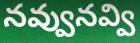
నవ్వునవ్వి